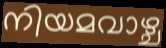
നിയമവാഴ്ച